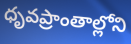
ధృవప్రాంతాల్లోని